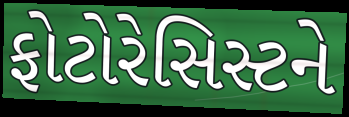
ફોટોરેસિસ્ટને